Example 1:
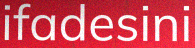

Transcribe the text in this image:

ifadesini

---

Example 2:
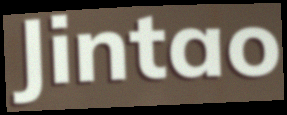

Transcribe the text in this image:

Jintao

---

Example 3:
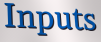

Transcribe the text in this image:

Inputs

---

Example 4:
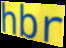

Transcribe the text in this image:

hbr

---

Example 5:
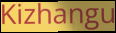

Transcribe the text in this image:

Kizhangu